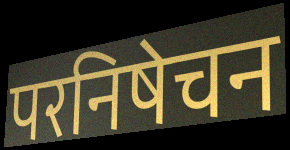
परनिषेचन